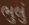
ભુલું